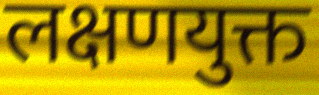
लक्षणयुक्त